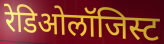
रेडिओलॉजिस्ट